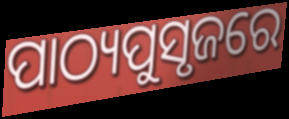
ପାଠ୍ୟପୁସୃଜରେ